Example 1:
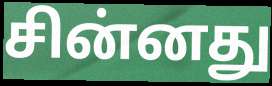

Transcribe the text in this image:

சின்னது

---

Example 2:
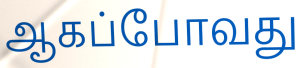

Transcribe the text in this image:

ஆகப்போவது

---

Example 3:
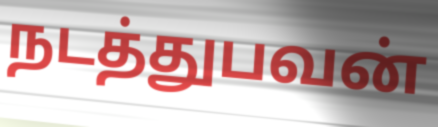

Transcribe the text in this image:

நடத்துபவன்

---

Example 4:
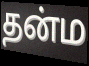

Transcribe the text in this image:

தன்ம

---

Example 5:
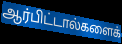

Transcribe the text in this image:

ஆர்பிட்டால்களைக்